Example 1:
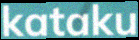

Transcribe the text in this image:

kataku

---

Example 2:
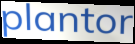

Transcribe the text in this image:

plantor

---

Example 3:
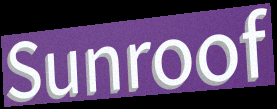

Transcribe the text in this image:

Sunroof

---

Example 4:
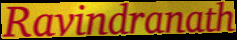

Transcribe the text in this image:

Ravindranath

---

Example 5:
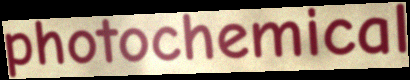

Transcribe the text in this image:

photochemical